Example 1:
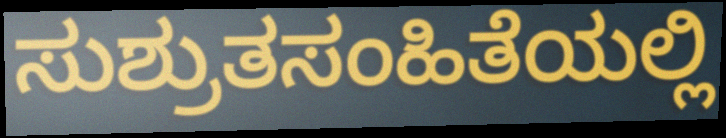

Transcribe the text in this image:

ಸುಶ್ರುತಸಂಹಿತೆಯಲ್ಲಿ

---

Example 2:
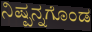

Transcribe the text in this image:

ನಿಷ್ಪನ್ನಗೊಂಡ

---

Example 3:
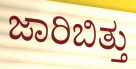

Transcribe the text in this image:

ಜಾರಿಬಿತ್ತು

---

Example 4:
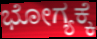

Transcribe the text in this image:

ಭೋಗ್ಯಕ್ಕೆ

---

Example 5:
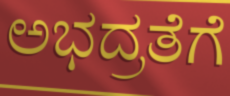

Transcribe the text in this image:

ಅಭದ್ರತೆಗೆ